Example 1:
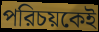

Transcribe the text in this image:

পরিচয়কেই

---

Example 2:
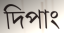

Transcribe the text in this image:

দিপাং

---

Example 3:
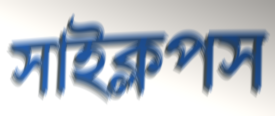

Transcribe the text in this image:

সাইক্লপস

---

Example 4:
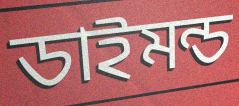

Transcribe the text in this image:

ডাইমন্ড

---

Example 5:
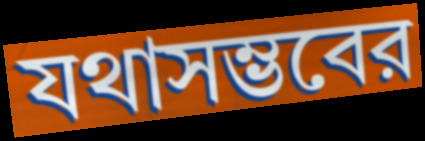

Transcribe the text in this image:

যথাসম্ভবের